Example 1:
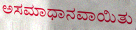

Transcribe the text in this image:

ಅಸಮಾಧಾನವಾಯಿತು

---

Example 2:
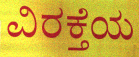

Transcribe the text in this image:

ವಿರಕ್ತೆಯ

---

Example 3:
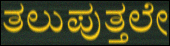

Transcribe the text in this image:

ತಲುಪುತ್ತಲೇ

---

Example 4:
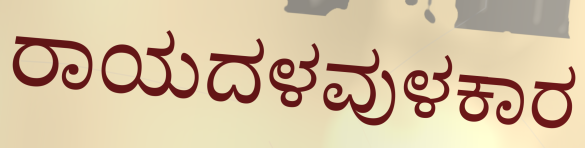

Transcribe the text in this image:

ರಾಯದಳವುಳಕಾರ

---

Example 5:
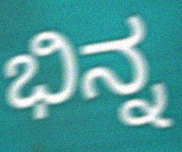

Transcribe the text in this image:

ಭಿನ್ನ